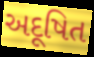
અદૂષિત